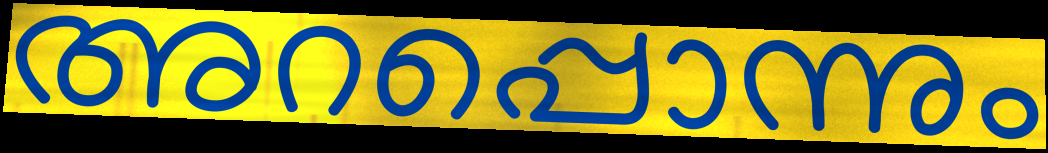
അറപ്പൊന്നും